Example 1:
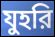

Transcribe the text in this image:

যুহরি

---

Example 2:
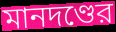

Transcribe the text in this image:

মানদণ্ডের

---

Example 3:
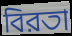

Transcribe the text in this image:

বিরতা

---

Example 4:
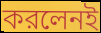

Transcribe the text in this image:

করলেনই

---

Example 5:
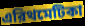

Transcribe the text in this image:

এরিথমেটিকা